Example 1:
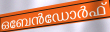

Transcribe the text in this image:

ഒബേൻഡോർഫ്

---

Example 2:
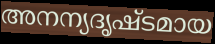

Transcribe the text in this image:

അനന്യദൃഷ്ടമായ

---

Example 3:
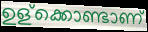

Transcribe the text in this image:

ഉള്ക്കൊണ്ടാണ്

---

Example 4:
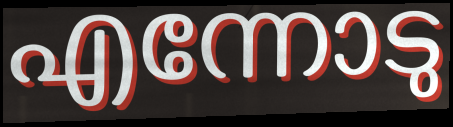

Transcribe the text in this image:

എന്നോടു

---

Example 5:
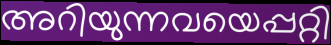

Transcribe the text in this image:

അറിയുന്നവയെപ്പറ്റി